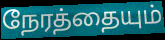
நேரத்தையும்